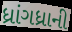
ધ્રાંગધ્રાની